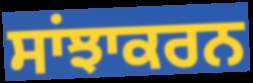
ਸਾਂਝਾਕਰਨ